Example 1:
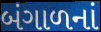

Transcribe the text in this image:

બંગાળનાં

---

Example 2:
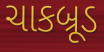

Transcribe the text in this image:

ચાકબ્રૂડ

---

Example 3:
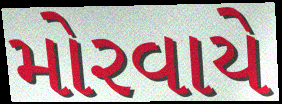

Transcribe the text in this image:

મોરવાયે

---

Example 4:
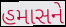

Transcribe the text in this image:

હમાસને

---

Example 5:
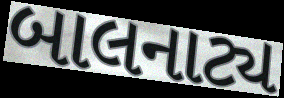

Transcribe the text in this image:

બાલનાટ્ય